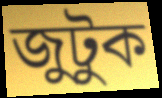
জুটুক